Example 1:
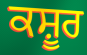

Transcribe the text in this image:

ਕਸ਼ੂਰ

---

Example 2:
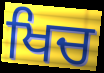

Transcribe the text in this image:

ਖਿਚ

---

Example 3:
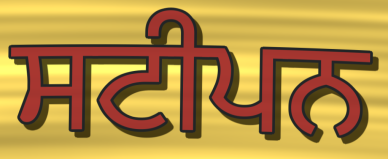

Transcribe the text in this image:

ਸਟੀਪਨ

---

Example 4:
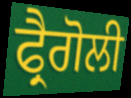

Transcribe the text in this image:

ਫ੍ਰੈਗੋਲੀ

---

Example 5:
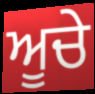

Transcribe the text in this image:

ਅੂਚੇ